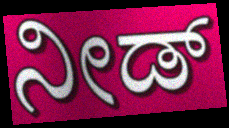
ನೀಡ್